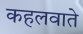
कहलवाते